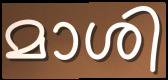
മാശി